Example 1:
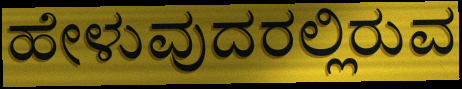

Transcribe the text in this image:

ಹೇಳುವುದರಲ್ಲಿರುವ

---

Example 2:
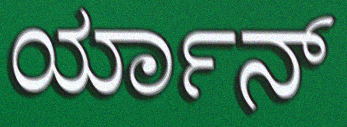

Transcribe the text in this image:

ರ್ಯಾನ್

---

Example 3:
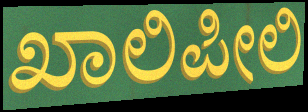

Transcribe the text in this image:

ಖಾಲಿಪೀಲಿ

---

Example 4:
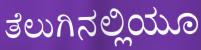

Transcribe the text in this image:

ತೆಲುಗಿನಲ್ಲಿಯೂ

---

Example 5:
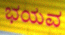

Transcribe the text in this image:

ಭಯವ